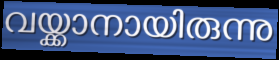
വയ്ക്കാനായിരുന്നു